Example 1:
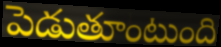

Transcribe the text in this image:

పెడుతూంటుంది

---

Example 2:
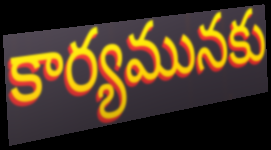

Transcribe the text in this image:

కార్యమునకు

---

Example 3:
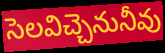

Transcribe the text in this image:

సెలవిచ్చెనునీవు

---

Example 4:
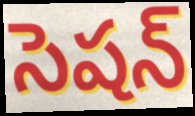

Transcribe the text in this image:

సెషన్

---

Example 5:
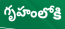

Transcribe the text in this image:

గృహంలోకి